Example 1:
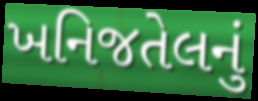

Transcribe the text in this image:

ખનિજતેલનું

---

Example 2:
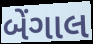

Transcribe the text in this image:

બેંગાલ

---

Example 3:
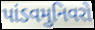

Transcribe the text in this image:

પાંડવમુનિવરો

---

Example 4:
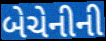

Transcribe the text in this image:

બેચેનીની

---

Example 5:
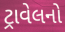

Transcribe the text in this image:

ટ્રાવેલનો